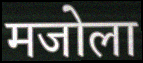
मजोला